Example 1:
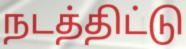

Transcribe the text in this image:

நடத்திட்டு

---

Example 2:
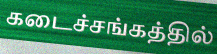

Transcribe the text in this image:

கடைச்சங்கத்தில்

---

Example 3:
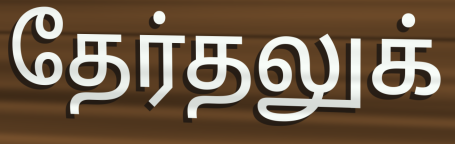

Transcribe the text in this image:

தேர்தலுக்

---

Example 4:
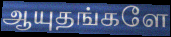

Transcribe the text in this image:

ஆயுதங்களே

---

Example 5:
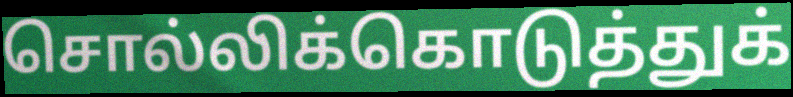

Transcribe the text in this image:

சொல்லிக்கொடுத்துக்